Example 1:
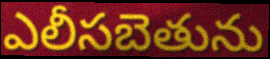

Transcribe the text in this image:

ఎలీసబెతును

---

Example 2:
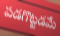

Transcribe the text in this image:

పడగొట్టడమే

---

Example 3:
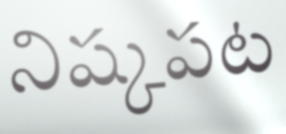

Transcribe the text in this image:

నిష్కపట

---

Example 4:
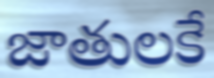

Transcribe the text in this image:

జాతులకే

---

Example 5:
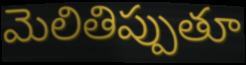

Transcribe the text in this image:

మెలితిప్పుతూ